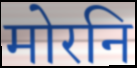
मोरनि